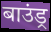
बाउंड्र